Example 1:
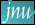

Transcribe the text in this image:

jnu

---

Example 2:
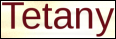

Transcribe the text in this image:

Tetany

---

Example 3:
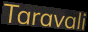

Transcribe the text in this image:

Taravali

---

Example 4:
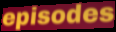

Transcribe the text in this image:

episodes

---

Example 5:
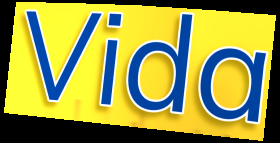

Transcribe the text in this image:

Vida